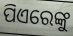
ପିଏରେଙ୍କୁ